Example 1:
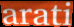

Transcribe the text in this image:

arati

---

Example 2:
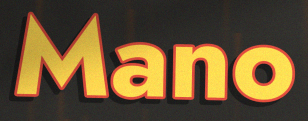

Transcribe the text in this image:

Mano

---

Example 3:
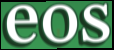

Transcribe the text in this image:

eos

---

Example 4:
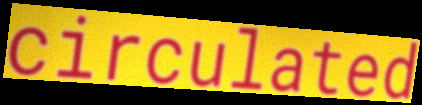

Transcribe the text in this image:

circulated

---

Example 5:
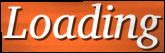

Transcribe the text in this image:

Loading